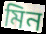
মিন